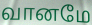
வானமே